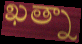
ఖత్నా